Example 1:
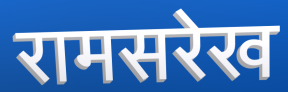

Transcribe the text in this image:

रामसरेख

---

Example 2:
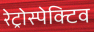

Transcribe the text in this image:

रेट्रोस्पेक्टिव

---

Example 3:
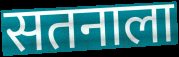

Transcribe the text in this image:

सतनाला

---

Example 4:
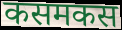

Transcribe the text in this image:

कसमकस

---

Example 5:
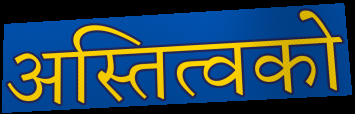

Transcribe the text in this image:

अस्तित्वको